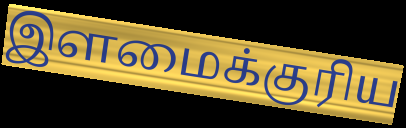
இளமைக்குரிய